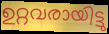
ഉറ്റവരായിട്ടു